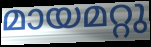
മായമറ്റു